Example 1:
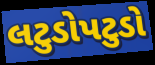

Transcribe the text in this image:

લટુડોપટુડો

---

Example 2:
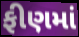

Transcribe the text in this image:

ફીણમાં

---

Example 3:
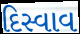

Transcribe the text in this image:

દિસ્વાવ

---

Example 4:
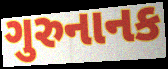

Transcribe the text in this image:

ગુરુનાનક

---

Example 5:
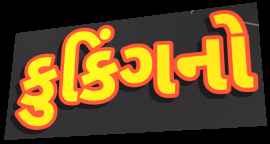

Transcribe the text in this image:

કુકિંગનો